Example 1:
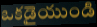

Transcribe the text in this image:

ఒకడైయుండి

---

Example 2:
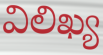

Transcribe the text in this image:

విలిఖ్య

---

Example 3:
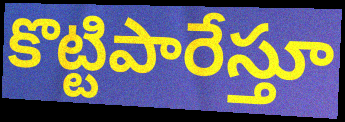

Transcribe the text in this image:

కొట్టిపారేస్తూ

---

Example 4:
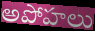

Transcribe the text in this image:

అపోహలు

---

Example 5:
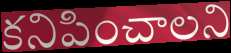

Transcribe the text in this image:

కనిపించాలని